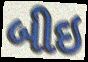
બીઇ